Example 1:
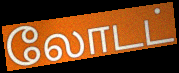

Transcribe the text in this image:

லோடட்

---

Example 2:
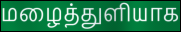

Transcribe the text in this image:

மழைத்துளியாக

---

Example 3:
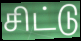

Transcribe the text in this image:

சிட்டு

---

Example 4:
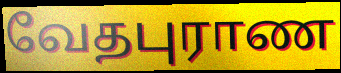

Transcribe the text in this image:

வேதபுராண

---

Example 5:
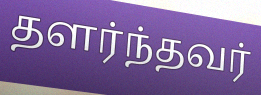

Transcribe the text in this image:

தளர்ந்தவர்